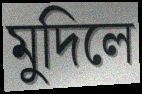
মুদিলে